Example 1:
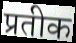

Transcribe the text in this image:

प्रतीक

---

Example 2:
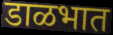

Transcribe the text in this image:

डाळभात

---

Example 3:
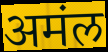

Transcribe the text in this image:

अमंल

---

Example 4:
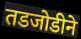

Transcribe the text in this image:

तडजोडीने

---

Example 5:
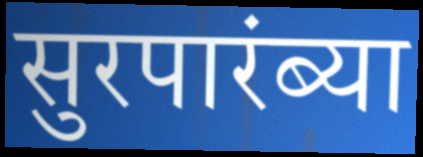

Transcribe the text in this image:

सुरपारंब्या